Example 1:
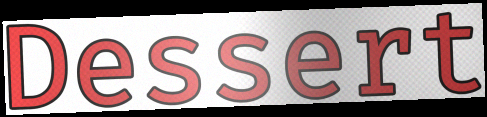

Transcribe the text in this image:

Dessert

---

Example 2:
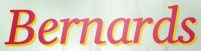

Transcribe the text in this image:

Bernards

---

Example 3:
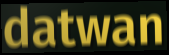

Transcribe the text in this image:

datwan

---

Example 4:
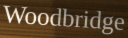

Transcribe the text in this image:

Woodbridge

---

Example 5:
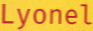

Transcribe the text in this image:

Lyonel